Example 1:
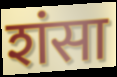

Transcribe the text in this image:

शंसा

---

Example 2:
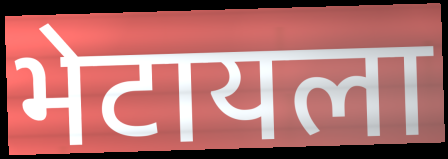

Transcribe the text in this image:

भेटायला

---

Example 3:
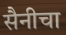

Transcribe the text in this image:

सैनीचा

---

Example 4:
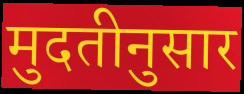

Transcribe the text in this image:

मुदतीनुसार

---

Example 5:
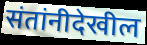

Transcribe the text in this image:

संतांनीदेखील